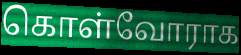
கொள்வோராக